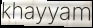
khayyam